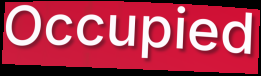
Occupied